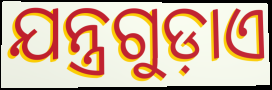
ଯନ୍ତ୍ରଗୁଡ଼ାଏ